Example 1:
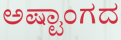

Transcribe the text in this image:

ಅಷ್ಟಾಂಗದ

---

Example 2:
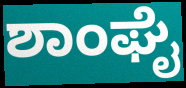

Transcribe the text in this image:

ಶಾಂಘೈ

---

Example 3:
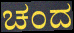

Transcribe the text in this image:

ಚಂದ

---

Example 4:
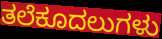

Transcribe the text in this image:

ತಲೆಕೂದಲುಗಳು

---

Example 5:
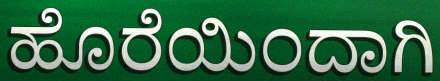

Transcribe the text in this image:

ಹೊರೆಯಿಂದಾಗಿ